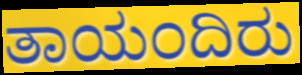
ತಾಯಂದಿರು